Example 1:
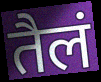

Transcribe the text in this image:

तैलं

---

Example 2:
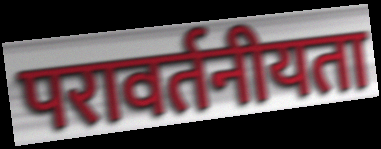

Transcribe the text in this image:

परावर्तनीयता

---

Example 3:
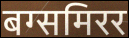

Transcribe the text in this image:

बग्समिरर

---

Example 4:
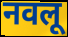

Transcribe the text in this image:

नवलू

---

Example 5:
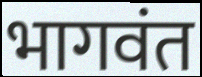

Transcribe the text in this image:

भागवंत